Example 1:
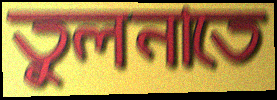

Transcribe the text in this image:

তুলনাতে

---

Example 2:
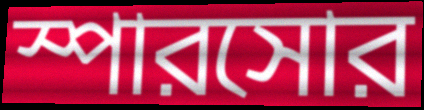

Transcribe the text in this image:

স্পারসোর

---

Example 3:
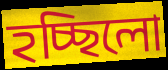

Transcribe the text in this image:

হচ্ছিলো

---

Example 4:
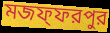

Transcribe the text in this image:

মজফ্ফরপুর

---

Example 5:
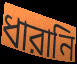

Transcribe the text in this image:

ধারানি